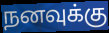
நனவுக்கு